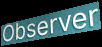
Observer